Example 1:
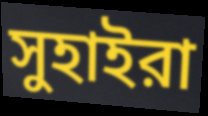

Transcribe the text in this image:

সুহাইরা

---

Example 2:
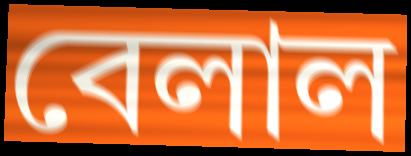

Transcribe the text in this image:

বেলাল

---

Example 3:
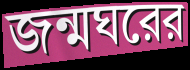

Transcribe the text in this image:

জন্মঘরের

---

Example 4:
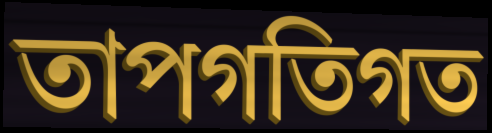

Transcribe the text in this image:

তাপগতিগত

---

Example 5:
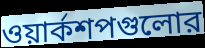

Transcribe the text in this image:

ওয়ার্কশপগুলোর